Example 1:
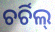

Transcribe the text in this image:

ଚର୍ଚିଲ୍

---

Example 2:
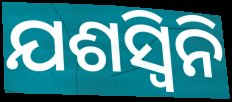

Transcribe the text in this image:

ଯଶସ୍ୱିନି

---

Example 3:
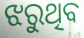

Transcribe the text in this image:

ଝରୁଥିବ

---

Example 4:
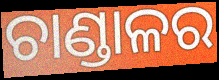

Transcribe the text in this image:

ଚାଣ୍ଡାଳର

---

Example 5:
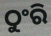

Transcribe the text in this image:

ଠୁଂରି